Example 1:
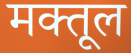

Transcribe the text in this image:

मक्तूल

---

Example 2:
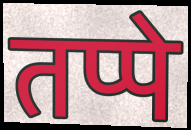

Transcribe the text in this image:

तप्पे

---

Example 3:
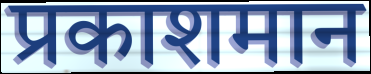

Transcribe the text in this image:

प्रकाशमान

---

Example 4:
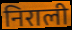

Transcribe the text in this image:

निराली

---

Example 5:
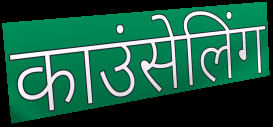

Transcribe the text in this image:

काउंसेलिंग